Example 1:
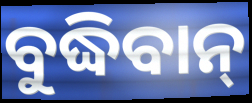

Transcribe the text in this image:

ବୁଦ୍ଧିବାନ୍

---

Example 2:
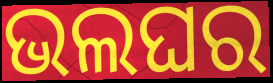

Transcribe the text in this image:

ଭଲଘର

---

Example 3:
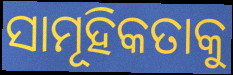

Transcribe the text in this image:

ସାମୂହିକତାକୁ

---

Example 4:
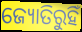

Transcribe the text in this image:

ଜ୍ୟୋତିରୁହିଁ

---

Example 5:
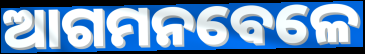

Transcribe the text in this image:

ଆଗମନବେଳେ